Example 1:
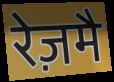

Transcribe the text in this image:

रेज़मै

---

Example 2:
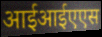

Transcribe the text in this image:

आईआईएएस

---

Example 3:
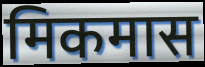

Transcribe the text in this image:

मिकमास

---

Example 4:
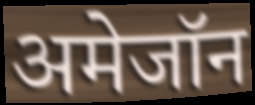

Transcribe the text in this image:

अमेजॉन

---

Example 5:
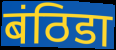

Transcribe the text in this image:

बंठिडा